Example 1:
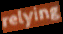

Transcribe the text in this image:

relying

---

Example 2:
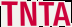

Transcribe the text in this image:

TNTA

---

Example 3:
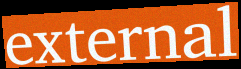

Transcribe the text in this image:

external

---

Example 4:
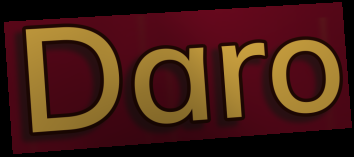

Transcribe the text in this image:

Daro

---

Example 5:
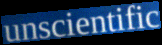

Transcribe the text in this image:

unscientific